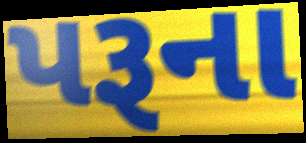
પરૂના